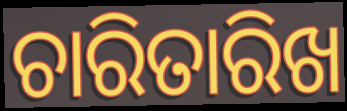
ଚାରିତାରିଖ